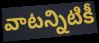
వాటన్నిటికీ